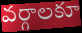
వర్గాలకూ